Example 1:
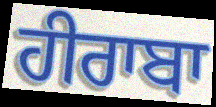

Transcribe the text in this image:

ਹੀਰਾਬਾ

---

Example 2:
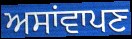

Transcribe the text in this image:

ਅਸਾਂਵਾਪਣ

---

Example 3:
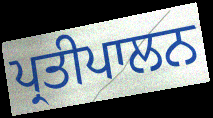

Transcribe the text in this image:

ਪ੍ਰਤੀਪਾਲਨ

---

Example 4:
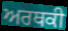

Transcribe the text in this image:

ਅਰਥਕੀ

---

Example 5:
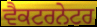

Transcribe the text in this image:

ਵੈਕਟਰਨੇਟਰ